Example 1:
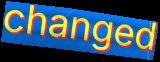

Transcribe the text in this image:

changed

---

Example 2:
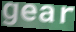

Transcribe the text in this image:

gear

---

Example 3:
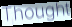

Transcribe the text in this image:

Thought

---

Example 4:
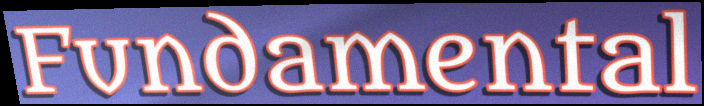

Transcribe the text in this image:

Fundamental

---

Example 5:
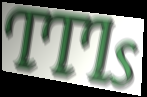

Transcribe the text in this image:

TTIs